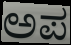
ಅಪ